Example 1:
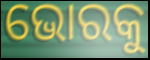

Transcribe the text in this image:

ଭୋରକୁ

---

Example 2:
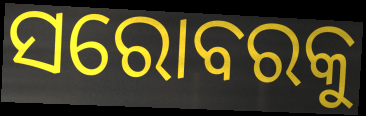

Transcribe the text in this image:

ସରୋବରକୁ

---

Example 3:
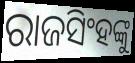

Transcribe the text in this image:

ରାଜସିଂହଙ୍କୁ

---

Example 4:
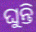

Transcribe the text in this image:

ଘୁନ୍ତି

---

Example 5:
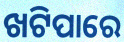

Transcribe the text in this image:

ଖଟିପାରେ